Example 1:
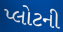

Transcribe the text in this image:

પ્લોટની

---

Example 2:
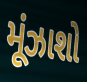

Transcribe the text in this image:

મૂંઝાશો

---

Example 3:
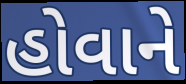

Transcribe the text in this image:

હોવાને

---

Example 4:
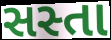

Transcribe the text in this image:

સસ્તા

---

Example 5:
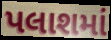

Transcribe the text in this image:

પલાશમાં